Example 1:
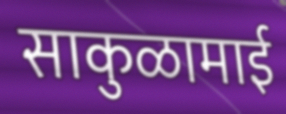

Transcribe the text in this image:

साकुळामाई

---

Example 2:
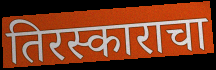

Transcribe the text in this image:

तिरस्काराचा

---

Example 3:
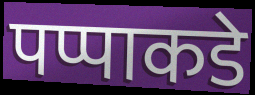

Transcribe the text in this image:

पप्पाकडे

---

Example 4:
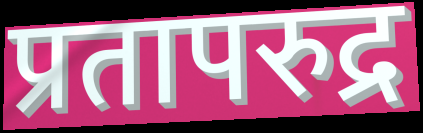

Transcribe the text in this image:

प्रतापरुद्र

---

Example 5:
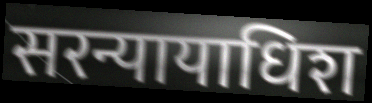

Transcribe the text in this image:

सरन्यायाधिश